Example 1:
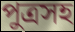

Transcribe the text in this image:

পুত্রসহ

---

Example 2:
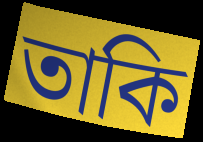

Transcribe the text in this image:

তাকি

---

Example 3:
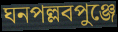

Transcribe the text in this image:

ঘনপল্লবপুঞ্জে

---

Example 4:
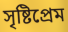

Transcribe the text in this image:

সৃষ্টিপ্রেম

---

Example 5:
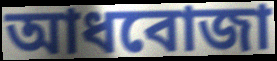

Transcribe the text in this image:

আধবোজা